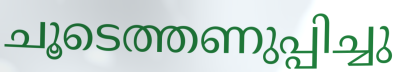
ചൂടെത്തണുപ്പിച്ചു